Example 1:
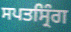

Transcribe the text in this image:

ਸਪਤਸ੍ਰਿੰਗ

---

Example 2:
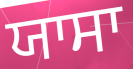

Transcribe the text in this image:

ਯਾਸਾ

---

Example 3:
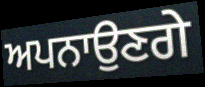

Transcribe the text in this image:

ਅਪਨਾਉਣਗੇ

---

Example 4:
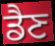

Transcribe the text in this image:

ਡੈਣ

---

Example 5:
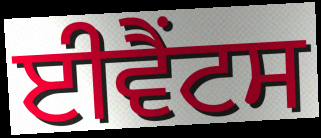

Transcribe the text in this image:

ਈਵੈਂਟਸ